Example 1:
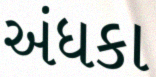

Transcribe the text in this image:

અંધકા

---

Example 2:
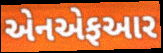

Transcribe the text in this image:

એનએફઆર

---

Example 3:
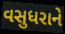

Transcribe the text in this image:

વસુધરાને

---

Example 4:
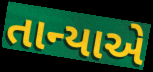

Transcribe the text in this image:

તાન્યાએ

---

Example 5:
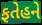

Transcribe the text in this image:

ફતેહને